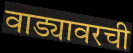
वाड्यावरची